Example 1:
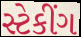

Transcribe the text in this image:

સ્ટેકીંગ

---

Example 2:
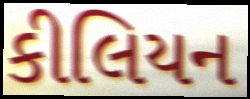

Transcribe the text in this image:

કીલિયન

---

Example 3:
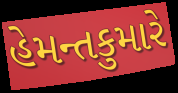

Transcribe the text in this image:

હેમન્તકુમારે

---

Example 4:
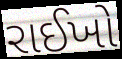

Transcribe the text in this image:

રાઈખો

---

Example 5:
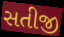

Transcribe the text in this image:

સતીજી